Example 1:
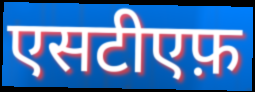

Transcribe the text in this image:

एसटीएफ़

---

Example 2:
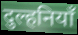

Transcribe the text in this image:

दुल्हनियाँ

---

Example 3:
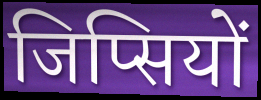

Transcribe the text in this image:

जिप्सियों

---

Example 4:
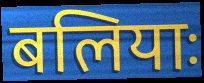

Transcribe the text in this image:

बलियाः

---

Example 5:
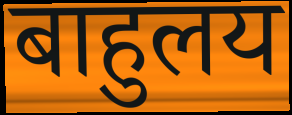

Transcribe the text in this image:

बाहुलय